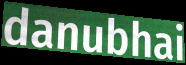
danubhai